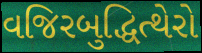
વજિરબુદ્ધિત્થેરો